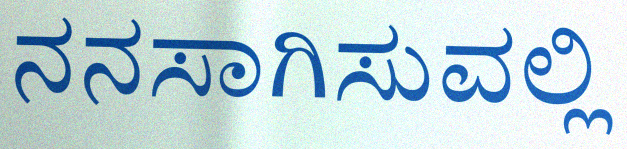
ನನಸಾಗಿಸುವಲ್ಲಿ